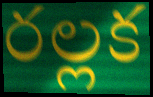
రల్లక